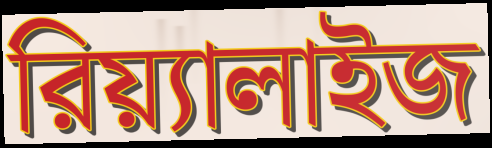
রিয়্যালাইজ